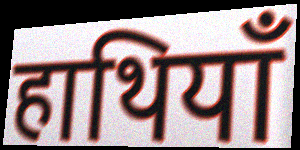
हाथियाँ